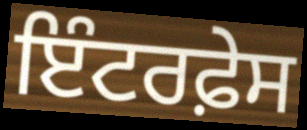
ਇੰਟਰਫ਼ੇਸ